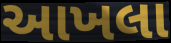
આખલા